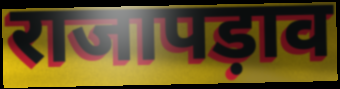
राजापड़ाव